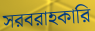
সরবরাহকারি